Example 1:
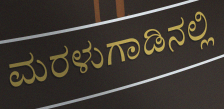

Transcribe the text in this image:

ಮರಳುಗಾಡಿನಲ್ಲಿ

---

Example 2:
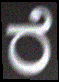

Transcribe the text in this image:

ರೆ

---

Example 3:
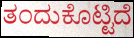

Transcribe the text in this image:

ತಂದುಕೊಟ್ಟಿದೆ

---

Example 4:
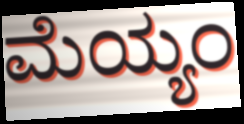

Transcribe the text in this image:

ಮೆಯ್ಯಂ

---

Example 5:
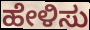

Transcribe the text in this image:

ಹೇಳಿಸು